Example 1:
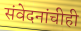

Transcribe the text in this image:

संवेदनांचीही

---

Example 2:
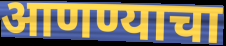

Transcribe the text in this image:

आणण्याचा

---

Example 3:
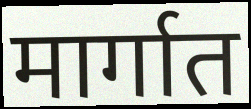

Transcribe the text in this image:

मार्गात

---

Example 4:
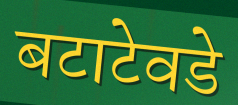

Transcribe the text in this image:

बटाटेवडे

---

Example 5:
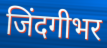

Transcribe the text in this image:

जिंदगीभर